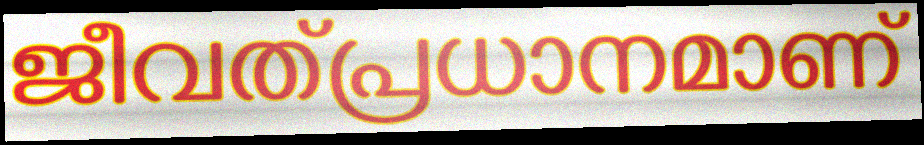
ജീവത്പ്രധാനമാണ്